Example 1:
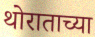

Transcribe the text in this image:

थोराताच्या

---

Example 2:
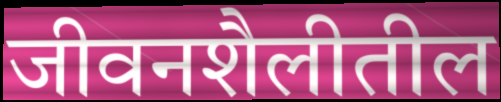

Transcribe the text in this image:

जीवनशैलीतील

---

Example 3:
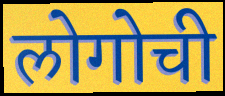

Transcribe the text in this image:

लोगोची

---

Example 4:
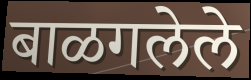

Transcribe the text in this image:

बाळगलेले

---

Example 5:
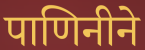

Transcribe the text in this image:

पाणिनीने